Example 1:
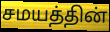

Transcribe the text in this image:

சமயத்தின்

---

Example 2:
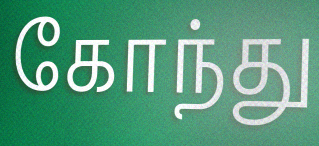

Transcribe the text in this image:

கோந்து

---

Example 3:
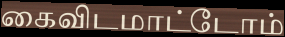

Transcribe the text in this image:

கைவிடமாட்டோம்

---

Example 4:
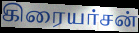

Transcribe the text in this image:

கிரையர்சன்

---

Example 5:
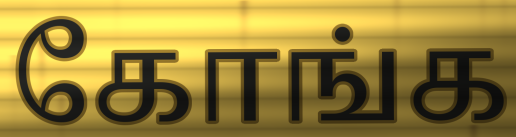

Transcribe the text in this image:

கோங்க